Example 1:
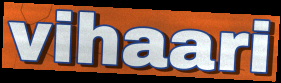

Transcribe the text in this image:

vihaari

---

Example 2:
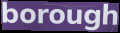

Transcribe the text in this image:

borough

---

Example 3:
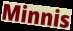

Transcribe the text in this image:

Minnis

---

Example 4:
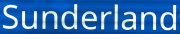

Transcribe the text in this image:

Sunderland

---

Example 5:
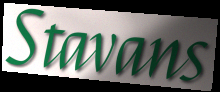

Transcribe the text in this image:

Stavans